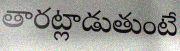
తారట్లాడుతుంటే